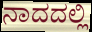
ನಾದದಲ್ಲಿ